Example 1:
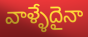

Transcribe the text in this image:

వాళ్ళేదైనా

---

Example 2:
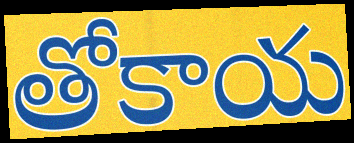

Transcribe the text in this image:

తోకాయ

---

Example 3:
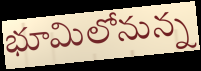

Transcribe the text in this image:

భూమిలోనున్న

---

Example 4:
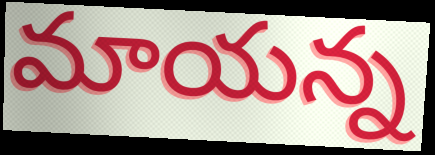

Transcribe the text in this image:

మాయన్న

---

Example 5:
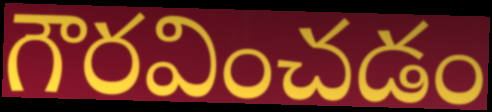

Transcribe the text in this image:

గౌరవించడం